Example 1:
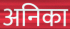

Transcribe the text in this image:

अनिका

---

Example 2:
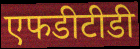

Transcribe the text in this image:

एफडीटीडी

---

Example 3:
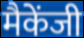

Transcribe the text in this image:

मैकेंजी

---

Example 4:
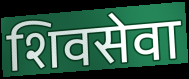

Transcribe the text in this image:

शिवसेवा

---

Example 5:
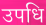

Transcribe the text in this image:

उपधि